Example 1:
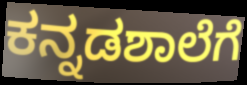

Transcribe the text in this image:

ಕನ್ನಡಶಾಲೆಗೆ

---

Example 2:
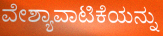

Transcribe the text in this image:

ವೇಶ್ಯಾವಾಟಿಕೆಯನ್ನು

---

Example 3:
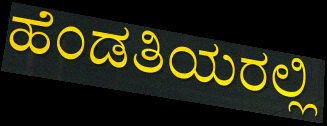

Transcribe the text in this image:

ಹೆಂಡತಿಯರಲ್ಲಿ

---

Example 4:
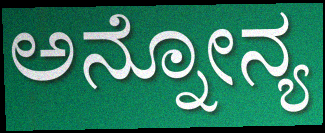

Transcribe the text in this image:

ಅನ್ನೋನ್ಯ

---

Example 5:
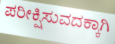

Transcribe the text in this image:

ಪರೀಕ್ಷಿಸುವದಕ್ಕಾಗಿ